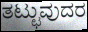
ತಟ್ಟುವುದರ